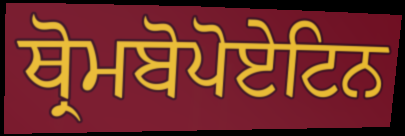
ਥ੍ਰੋਮਬੋਪੋਏਟਿਨ